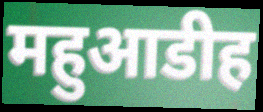
महुआडीह